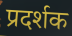
प्रदर्शक